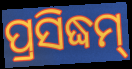
ପ୍ରସିଦ୍ଧମ୍